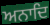
ਅਨਾਦਿ